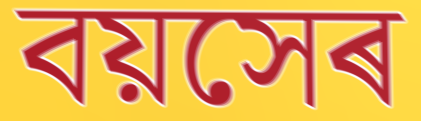
বয়সেৰ